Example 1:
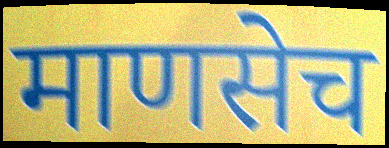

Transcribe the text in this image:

माणसेच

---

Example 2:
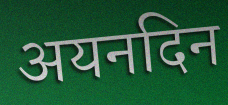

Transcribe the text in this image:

अयनदिन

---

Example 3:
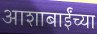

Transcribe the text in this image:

आशाबाईंच्या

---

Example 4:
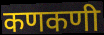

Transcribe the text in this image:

कणकणी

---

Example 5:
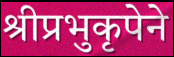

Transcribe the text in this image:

श्रीप्रभुकृपेने